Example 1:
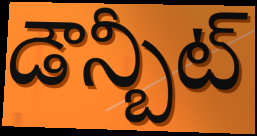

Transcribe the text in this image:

డౌన్బీట్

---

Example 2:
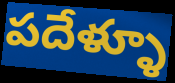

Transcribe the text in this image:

పదేళ్ళూ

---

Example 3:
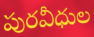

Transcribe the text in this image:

పురవీధుల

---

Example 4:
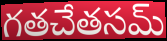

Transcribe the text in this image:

గతచేతసమ్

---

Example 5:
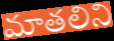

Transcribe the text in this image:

మాతలిని